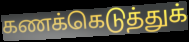
கணக்கெடுத்துக்